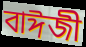
বাঈজী